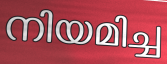
നിയമിച്ച